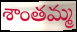
శాంతమ్మ